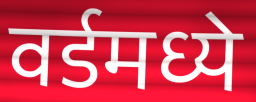
वर्डमध्ये